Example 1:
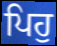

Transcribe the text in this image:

ਪਿਹੁ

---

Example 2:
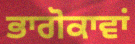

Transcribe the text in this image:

ਭਾਗੋਕਾਵਾਂ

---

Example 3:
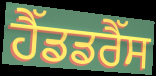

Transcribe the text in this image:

ਹੈੱਡਡਰੈੱਸ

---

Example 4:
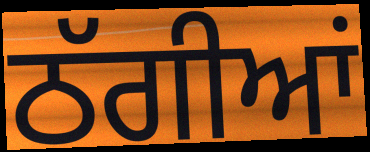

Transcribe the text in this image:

ਠੱਗੀਆਂ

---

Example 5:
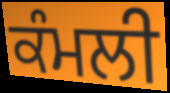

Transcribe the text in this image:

ਕੰਮਲੀ